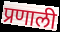
प्रणाली